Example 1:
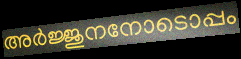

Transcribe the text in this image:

അർജ്ജുനനോടൊപ്പം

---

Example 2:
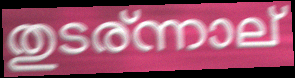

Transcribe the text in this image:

തുടര്ന്നാല്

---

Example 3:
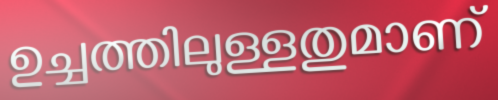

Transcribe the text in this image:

ഉച്ചത്തിലുള്ളതുമാണ്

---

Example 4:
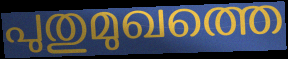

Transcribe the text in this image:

പുതുമുഖത്തെ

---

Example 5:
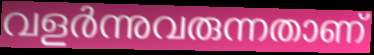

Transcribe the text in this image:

വളർന്നുവരുന്നതാണ്